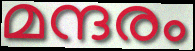
മന്ദരം